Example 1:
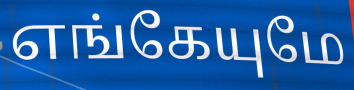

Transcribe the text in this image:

எங்கேயுமே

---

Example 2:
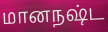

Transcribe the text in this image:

மானநஷ்ட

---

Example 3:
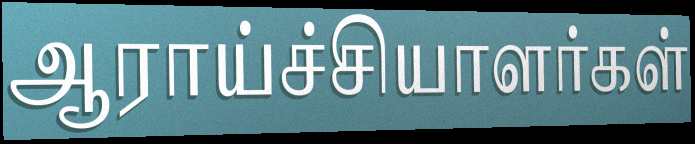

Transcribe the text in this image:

ஆராய்ச்சியாளர்கள்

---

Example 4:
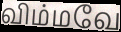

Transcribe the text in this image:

விம்மவே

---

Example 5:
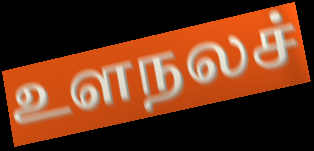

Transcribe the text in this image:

உளநலச்